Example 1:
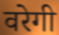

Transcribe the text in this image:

वरेगी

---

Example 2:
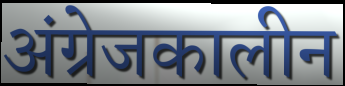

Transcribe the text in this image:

अंग्रेजकालीन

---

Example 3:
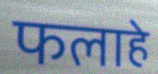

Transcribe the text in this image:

फलाहे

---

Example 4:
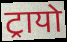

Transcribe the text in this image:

ट्रायो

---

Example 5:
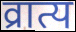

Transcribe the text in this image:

व्रात्य